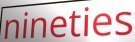
nineties